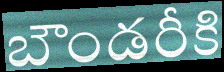
బౌండరీకి